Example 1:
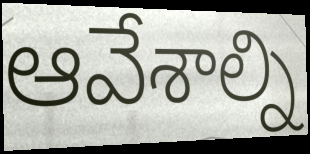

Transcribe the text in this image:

ఆవేశాల్ని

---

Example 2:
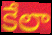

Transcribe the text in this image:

కేలా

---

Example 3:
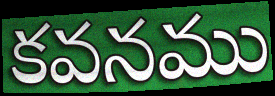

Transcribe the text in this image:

కవనము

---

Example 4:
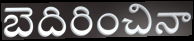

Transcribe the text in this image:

బెదిరించినా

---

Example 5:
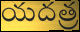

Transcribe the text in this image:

యదత్ర